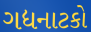
ગદ્યનાટકો